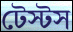
টেস্টস